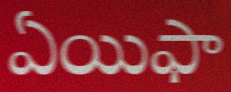
ఏయిఫా